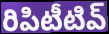
రిపిటీటివ్